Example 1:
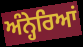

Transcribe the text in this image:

ਅੰਨ੍ਹੇਰਿਆਂ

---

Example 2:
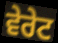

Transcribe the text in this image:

ਵੇਰੇਟ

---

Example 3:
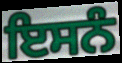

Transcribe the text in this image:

ਇਸਨੰ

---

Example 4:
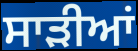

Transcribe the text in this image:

ਸਾਡ਼ੀਆਂ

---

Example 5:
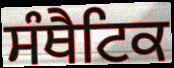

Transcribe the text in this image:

ਸੰਥੈਟਿਕ